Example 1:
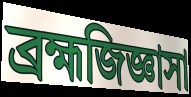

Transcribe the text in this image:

ব্রহ্মজিজ্ঞাসা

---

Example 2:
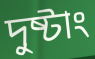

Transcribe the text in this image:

দুষ্টাং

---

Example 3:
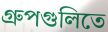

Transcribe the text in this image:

গ্রুপগুলিতে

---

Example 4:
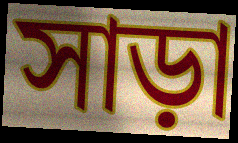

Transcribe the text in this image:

সাড়া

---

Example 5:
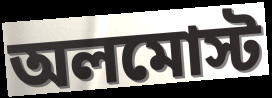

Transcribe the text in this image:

অলমোস্ট